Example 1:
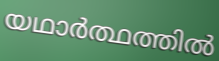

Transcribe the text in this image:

യഥാർത്ഥത്തിൽ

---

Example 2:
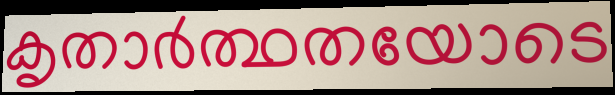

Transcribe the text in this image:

കൃതാർത്ഥതയോടെ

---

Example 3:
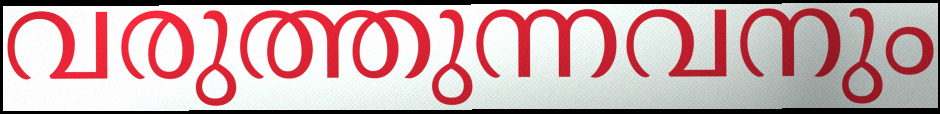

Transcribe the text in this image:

വരുത്തുന്നവനും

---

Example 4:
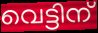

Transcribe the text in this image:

വെട്ടിന്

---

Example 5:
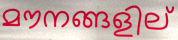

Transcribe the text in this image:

മൗനങ്ങളില്